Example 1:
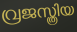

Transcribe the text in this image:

വ്രജസ്ത്രിയ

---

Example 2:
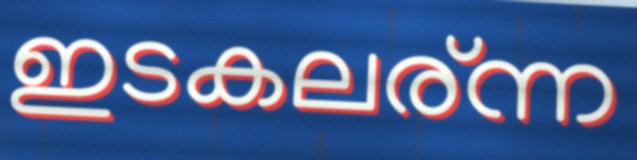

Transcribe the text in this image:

ഇടകലര്ന്ന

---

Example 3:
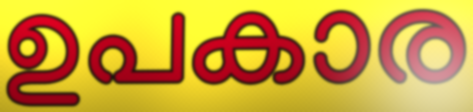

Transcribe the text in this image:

ഉപകാര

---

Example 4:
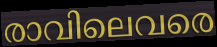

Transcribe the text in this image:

രാവിലെവരെ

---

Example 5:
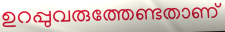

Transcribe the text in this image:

ഉറപ്പുവരുത്തേണ്ടതാണ്